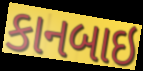
કાનબાઇ